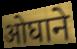
ओघाने